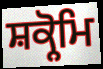
ਸ਼ਕ੍ਨੋਮਿ